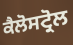
ਕੈਲੋਸਟ੍ਰੋਲ